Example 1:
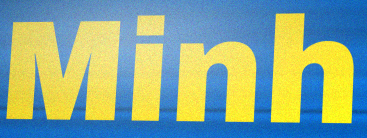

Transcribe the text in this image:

Minh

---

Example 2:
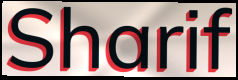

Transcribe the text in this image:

Sharif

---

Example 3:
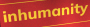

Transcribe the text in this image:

inhumanity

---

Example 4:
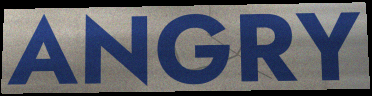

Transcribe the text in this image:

ANGRY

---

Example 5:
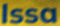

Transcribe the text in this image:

Issa